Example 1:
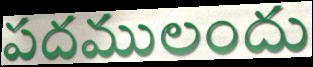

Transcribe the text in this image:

పదములందు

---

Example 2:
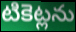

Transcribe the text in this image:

టికెట్లను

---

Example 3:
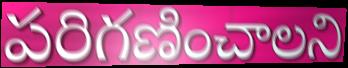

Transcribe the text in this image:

పరిగణించాలని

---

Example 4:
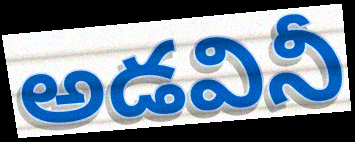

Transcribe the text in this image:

అడవినీ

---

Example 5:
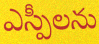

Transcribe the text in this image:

ఎస్పీలను